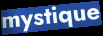
mystique